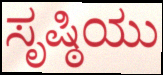
ಸೃಷ್ಠಿಯು